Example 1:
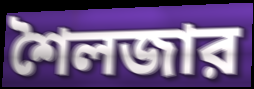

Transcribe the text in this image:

শৈলজার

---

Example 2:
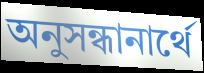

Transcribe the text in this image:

অনুসন্ধানার্থে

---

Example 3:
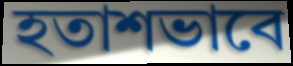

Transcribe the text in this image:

হতাশভাবে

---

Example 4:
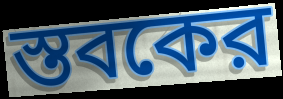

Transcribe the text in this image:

স্তবকের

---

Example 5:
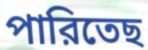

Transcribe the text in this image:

পারিতেছ